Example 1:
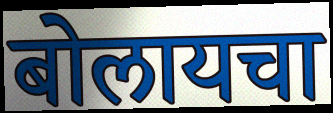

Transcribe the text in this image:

बोलायचा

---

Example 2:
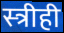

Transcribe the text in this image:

स्त्रीही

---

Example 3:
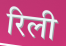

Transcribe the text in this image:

रिली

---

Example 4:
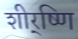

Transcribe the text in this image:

शीर्ष्णि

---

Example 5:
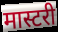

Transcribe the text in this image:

मास्टरी